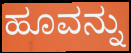
ಹೂವನ್ನು